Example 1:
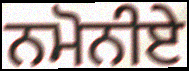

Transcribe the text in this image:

ਨਮੋਨੀਏ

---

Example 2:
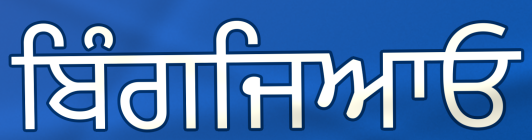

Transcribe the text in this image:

ਬਿੰਗਜਿਆਓ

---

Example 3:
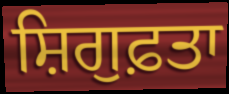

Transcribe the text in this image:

ਸ਼ਿਗੁਫ਼ਤਾ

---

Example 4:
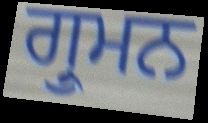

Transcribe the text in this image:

ਗ੍ਰੁਮਨ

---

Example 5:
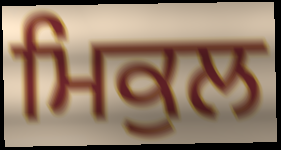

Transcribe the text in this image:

ਮਿਕੁਲ